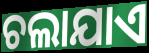
ଚଲାଯାଏ